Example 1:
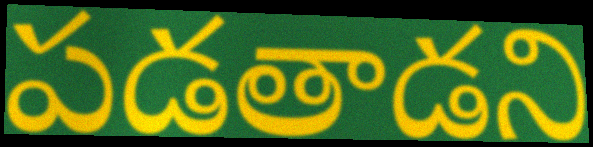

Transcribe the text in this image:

పడతాడని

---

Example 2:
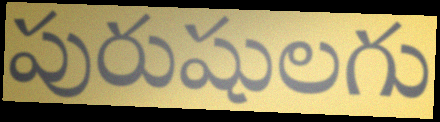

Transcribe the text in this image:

పురుషులగు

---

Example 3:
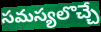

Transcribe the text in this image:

సమస్యలొచ్చే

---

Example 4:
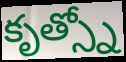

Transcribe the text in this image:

కృత్స్నో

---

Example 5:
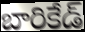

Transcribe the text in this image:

బారికేడ్